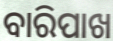
ବାରିପାଖ